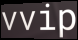
vvip